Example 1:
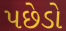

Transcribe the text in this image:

પછેડો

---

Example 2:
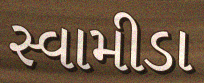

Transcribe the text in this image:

સ્વામીડા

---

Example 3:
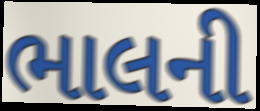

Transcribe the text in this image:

ભાલની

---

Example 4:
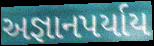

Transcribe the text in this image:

અજ્ઞાનપર્યાય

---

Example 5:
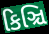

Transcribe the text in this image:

કિઞ્ચિ